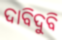
ଦାବିଦୁବି